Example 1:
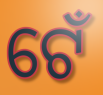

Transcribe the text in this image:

ଟେଁ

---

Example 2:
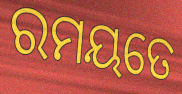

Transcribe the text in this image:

ରମୟତେ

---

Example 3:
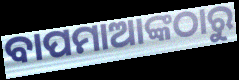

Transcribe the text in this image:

ବାପମାଆଙ୍କଠାରୁ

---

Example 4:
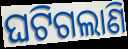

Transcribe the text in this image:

ଘଟିଗଲାଣି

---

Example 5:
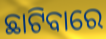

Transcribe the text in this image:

ଛାଟିବାରେ